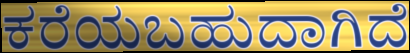
ಕರೆಯಬಹುದಾಗಿದೆ